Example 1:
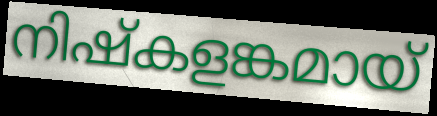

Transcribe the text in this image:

നിഷ്കളങ്കമായ്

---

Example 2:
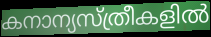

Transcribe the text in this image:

കനാന്യസ്ത്രീകളിൽ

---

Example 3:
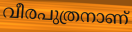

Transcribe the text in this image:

വീരപുത്രനാണ്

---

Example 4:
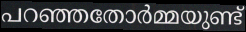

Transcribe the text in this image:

പറഞ്ഞതോർമ്മയുണ്ട്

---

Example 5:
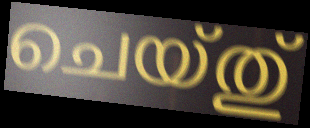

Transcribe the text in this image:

ചെയ്തു്